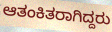
ಆತಂಕಿತರಾಗಿದ್ದರು